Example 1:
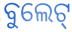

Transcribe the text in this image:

ବୁଲେଟ୍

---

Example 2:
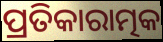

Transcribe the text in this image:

ପ୍ରତିକାରାତ୍ମକ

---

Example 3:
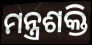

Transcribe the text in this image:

ମନ୍ତ୍ରଶକ୍ତି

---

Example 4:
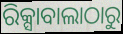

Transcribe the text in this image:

ରିକ୍ସାବାଲାଠାରୁ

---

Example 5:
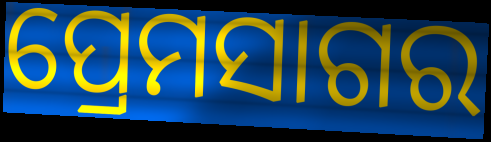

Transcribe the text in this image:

ପ୍ରେମସାଗର